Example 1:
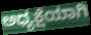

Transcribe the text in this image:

ಅಧ್ಯಕ್ಷೆಯಾಗಿ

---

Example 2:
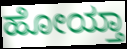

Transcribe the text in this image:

ಹೋಯ್ತಾ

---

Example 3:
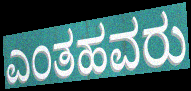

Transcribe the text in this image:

ಎಂತಹವರು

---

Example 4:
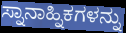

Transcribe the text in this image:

ಸ್ನಾನಾಹ್ನಿಕಗಳನ್ನು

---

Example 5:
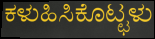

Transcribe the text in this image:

ಕಳುಹಿಸಿಕೊಟ್ಟಳು